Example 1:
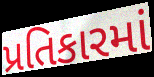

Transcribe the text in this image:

પ્રતિકારમાં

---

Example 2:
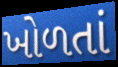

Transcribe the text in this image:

ખોળતાં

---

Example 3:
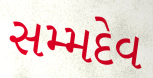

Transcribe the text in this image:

સમ્મદેવ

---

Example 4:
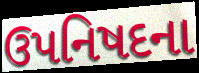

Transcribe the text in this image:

ઉપનિષદના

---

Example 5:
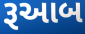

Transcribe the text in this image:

રૂઆબ